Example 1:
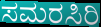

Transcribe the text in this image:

ಸಮರಸಿರಿ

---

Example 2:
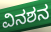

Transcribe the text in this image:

ವಿನಶನ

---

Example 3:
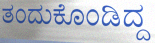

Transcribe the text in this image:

ತಂದುಕೊಂಡಿದ್ದ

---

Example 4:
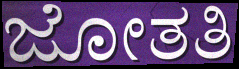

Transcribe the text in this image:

ಜೋತತಿ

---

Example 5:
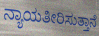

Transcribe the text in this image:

ನ್ಯಾಯತೀರಿಸುತ್ತಾನೆ